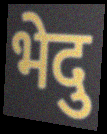
भेदु